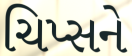
ચિપ્સને